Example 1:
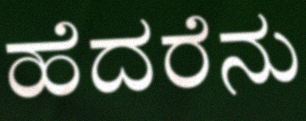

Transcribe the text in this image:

ಹೆದರೆನು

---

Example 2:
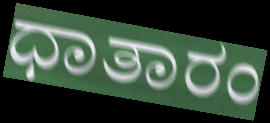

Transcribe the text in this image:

ಧಾತಾರಂ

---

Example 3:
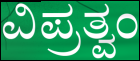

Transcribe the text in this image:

ವಿಪ್ರತ್ವಂ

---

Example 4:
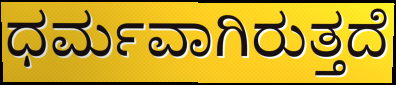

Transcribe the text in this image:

ಧರ್ಮವಾಗಿರುತ್ತದೆ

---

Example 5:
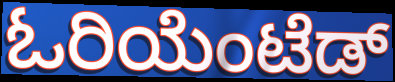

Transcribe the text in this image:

ಓರಿಯೆಂಟೆಡ್